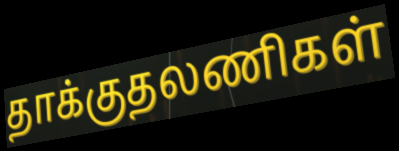
தாக்குதலணிகள்